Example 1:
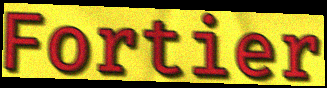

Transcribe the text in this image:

Fortier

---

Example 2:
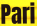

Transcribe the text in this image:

Pari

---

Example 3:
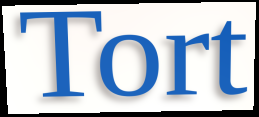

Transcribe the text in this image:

Tort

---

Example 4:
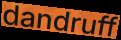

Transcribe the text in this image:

dandruff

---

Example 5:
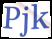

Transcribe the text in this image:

Pjk